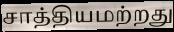
சாத்தியமற்றது